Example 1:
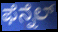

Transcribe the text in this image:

ಫೆನ್ನೆಲ್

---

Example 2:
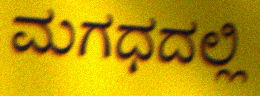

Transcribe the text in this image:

ಮಗಧದಲ್ಲಿ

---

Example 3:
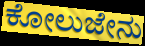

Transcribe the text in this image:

ಕೋಲುಜೇನು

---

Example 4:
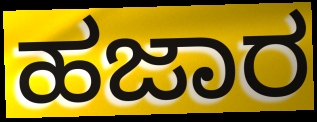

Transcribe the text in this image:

ಹಜಾರ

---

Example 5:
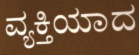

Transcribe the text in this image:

ವ್ಯಕ್ತಿಯಾದ